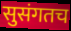
सुसंगतच